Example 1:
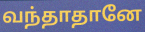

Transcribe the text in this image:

வந்தாதானே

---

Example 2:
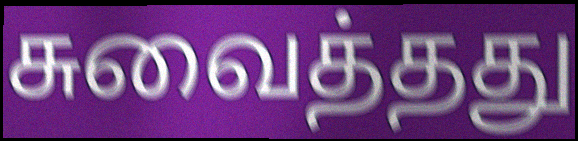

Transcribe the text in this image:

சுவைத்தது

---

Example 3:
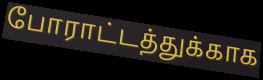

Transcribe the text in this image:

போராட்டத்துக்காக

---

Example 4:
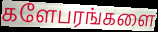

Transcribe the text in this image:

களேபரங்களை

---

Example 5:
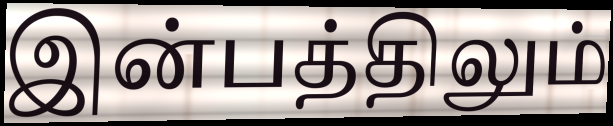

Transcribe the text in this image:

இன்பத்திலும்